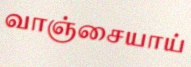
வாஞ்சையாய்